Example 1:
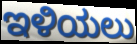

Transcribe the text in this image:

ಇಳಿಯಲು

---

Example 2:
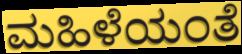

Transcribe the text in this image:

ಮಹಿಳೆಯಂತೆ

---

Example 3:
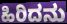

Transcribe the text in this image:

ಹಿರಿದನು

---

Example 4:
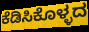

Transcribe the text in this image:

ಕೆಡಿಸಿಕೊಳ್ಳದ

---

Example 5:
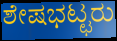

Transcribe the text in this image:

ಶೇಷಭಟ್ಟರು